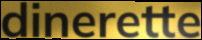
dinerette